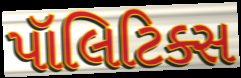
પૉલિટિક્સ